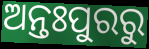
ଅନ୍ତଃପୁରରୁ